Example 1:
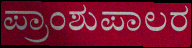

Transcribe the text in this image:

ಪ್ರಾಂಶುಪಾಲರ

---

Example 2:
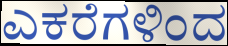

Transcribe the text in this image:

ಎಕರೆಗಳಿಂದ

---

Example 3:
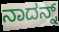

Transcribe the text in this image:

ನಾದನ್ನ್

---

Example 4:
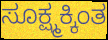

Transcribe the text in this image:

ಸೂಕ್ಷ್ಮಕ್ಕಿಂತ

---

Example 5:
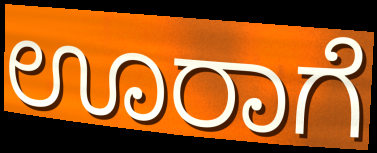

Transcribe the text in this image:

ಊರಾಗೆ